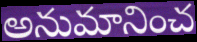
అనుమానించ